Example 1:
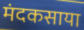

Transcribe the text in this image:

मंदकसाया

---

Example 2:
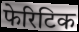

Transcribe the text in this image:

फेरिटिक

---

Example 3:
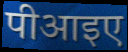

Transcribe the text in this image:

पीआइए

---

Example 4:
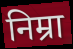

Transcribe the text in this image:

निम्रा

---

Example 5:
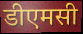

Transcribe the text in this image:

डीएमसी